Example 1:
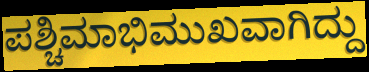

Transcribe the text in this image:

ಪಶ್ಚಿಮಾಭಿಮುಖವಾಗಿದ್ದು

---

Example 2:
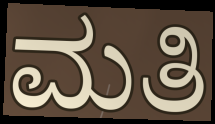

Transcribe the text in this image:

ಮತಿ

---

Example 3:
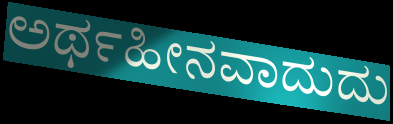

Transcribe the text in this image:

ಅರ್ಥಹೀನವಾದುದು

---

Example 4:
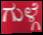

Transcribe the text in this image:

ಗುಳ್ಗೆ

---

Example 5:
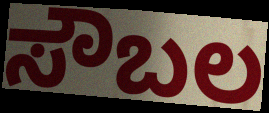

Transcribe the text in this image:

ಸೌಬಲ